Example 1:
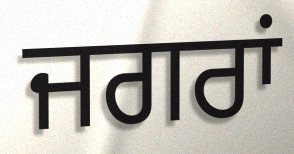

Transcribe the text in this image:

ਜਗਰਾਂ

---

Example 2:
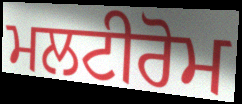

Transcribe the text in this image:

ਮਲਟੀਰੋਮ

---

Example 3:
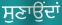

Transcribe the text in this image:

ਸੁਣਾਉਂਦਾਂ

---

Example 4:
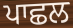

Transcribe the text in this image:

ਪਾਛਲ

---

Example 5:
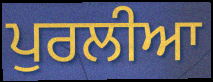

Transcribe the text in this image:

ਪੁਰਲੀਆ